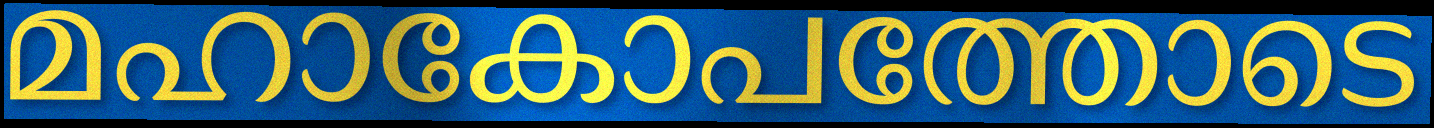
മഹാകോപത്തോടെ